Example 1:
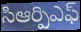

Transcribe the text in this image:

సిఆర్పిఎఫ్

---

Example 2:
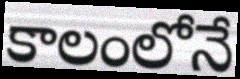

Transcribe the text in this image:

కాలంలోనే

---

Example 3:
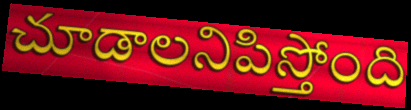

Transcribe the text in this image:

చూడాలనిపిస్తోంది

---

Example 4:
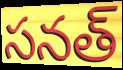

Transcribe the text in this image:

సనత్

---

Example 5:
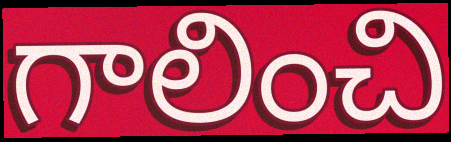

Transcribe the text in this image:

గాలించి